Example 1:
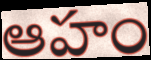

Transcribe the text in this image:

ఆహం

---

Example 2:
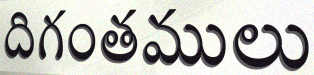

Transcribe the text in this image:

దిగంతములు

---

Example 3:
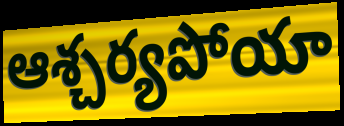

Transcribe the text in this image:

ఆశ్చర్యపోయా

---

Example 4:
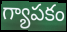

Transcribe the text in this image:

గ్యాపకం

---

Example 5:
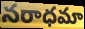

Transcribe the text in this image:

నరాధమా